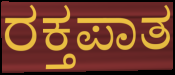
ರಕ್ತಪಾತ